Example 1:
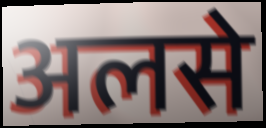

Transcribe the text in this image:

अलसे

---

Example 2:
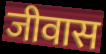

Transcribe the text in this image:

जीवास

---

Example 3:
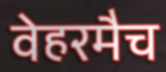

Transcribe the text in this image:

वेहरमैच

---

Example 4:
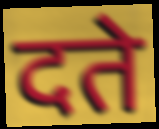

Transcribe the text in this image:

दते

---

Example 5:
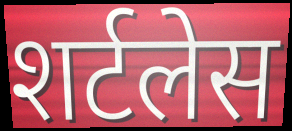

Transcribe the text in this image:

शर्टलेस